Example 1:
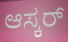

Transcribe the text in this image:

ಆಸ್ಕರ್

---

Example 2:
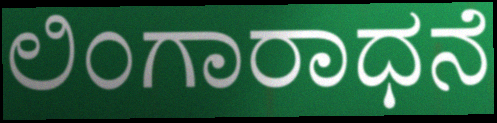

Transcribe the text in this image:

ಲಿಂಗಾರಾಧನೆ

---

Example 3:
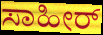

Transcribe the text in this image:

ಸಾಹೀರ್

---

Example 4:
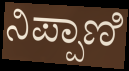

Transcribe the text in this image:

ನಿಪ್ಪಾಣಿ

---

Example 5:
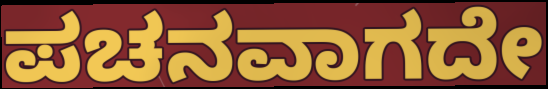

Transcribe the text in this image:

ಪಚನವಾಗದೇ